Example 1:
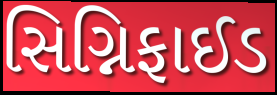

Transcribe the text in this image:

સિગ્નિફાઈડ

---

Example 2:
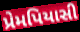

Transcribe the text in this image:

પ્રેમપિયાસી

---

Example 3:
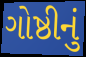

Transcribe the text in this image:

ગોષ્ઠીનું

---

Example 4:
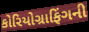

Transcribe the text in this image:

કોરિયોગ્રાફિંગની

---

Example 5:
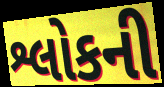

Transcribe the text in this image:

શ્લોકની